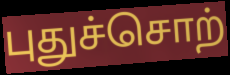
புதுச்சொற்